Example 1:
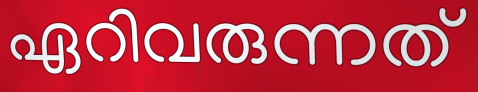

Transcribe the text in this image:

ഏറിവരുന്നത്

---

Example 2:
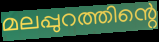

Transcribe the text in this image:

മലപ്പുറത്തിന്റെ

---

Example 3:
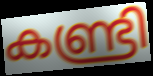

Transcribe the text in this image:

കണ്ട്രി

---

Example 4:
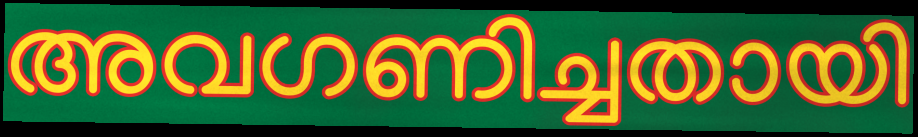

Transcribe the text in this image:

അവഗണിച്ചതായി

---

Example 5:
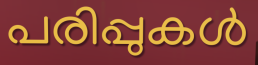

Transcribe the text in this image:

പരിപ്പുകൾ